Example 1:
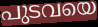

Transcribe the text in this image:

പുടവയെ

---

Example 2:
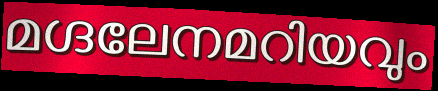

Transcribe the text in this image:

മഗ്ദലേനമറിയവും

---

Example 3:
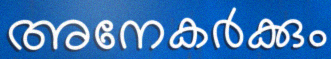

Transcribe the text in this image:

അനേകർക്കും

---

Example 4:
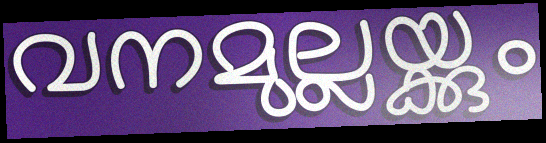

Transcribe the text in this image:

വനമുല്ലയ്ക്കും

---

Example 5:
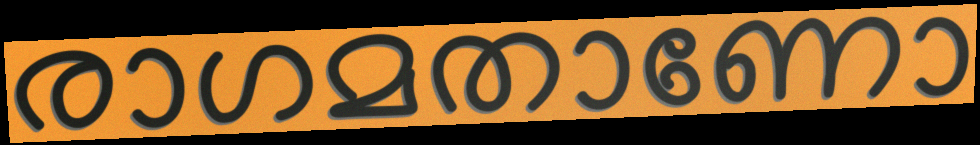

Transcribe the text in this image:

രാഗമതാണോ